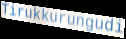
Tirukkurungudi